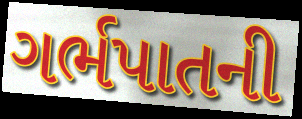
ગર્ભપાતની